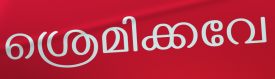
ശ്രെമിക്കവേ